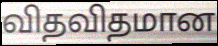
விதவிதமான